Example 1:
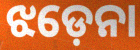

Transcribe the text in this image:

ଝଡ଼େନା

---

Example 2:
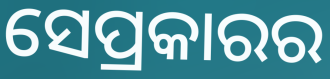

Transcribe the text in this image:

ସେପ୍ରକାରର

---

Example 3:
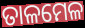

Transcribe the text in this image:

ତାଳମେଳ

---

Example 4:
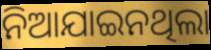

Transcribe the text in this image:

ନିଆଯାଇନଥିଲା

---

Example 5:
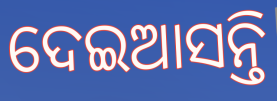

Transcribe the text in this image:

ଦେଇଆସନ୍ତି